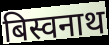
बिस्वनाथ